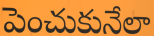
పెంచుకునేలా